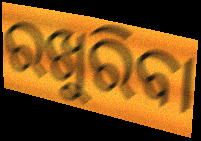
ରଖୁରିବା